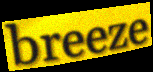
breeze